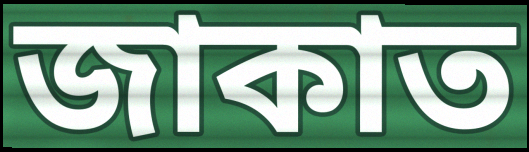
জাকাত